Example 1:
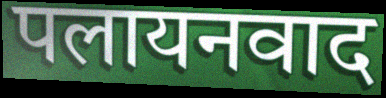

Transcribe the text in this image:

पलायनवाद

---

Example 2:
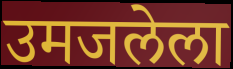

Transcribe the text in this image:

उमजलेला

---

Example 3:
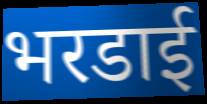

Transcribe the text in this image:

भरडाई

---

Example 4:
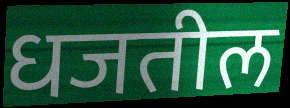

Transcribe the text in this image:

धजतील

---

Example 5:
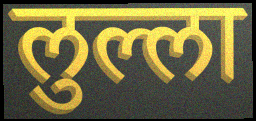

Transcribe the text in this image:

लुल्ला